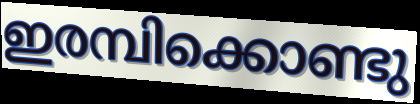
ഇരമ്പിക്കൊണ്ടു